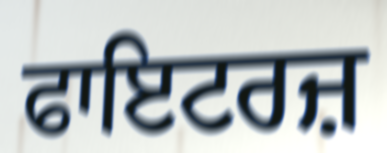
ਫਾਇਟਰਜ਼